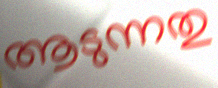
ആടുന്നതു